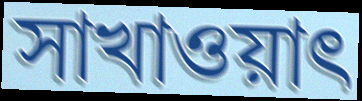
সাখাওয়াৎ